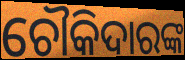
ଚୌକିଦାରଙ୍କ